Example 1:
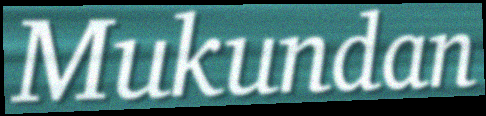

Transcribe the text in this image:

Mukundan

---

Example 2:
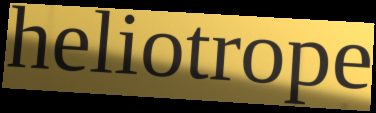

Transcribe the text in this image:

heliotrope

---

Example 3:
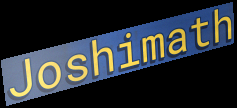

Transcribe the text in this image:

Joshimath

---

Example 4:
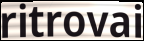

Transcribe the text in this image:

ritrovai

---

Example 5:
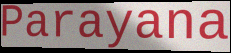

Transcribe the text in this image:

Parayana